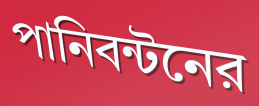
পানিবন্টনের